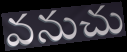
వనుచు